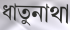
ধাতুনাথা